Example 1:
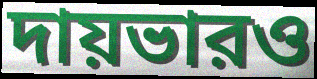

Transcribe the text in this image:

দায়ভারও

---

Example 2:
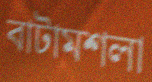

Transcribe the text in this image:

বাটামশলা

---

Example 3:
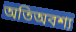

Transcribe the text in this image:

অতিঅবশ্য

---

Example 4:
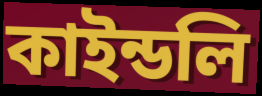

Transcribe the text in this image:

কাইন্ডলি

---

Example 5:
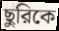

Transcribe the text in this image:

ছুরিকে